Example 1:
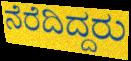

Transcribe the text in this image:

ನೆರೆದಿದ್ದರು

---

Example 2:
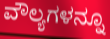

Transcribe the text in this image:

ವೌಲ್ಯಗಳನ್ನೂ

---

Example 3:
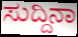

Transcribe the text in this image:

ಸುದ್ದಿನಾ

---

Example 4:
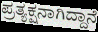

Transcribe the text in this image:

ಪ್ರತ್ಯಕ್ಷನಾಗಿದ್ದಾನೆ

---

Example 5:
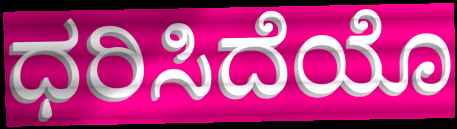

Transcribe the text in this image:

ಧರಿಸಿದೆಯೊ